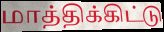
மாத்திக்கிட்டு